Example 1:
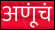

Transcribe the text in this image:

अणूंचं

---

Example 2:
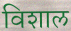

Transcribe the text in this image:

विशाल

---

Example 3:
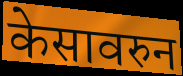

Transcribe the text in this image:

केसावरुन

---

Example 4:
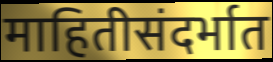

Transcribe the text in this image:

माहितीसंदर्भात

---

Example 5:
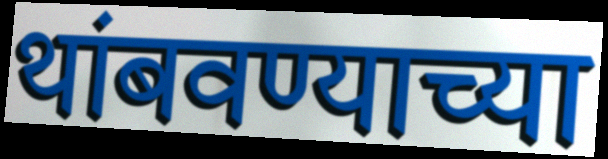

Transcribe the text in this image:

थांबवण्याच्या